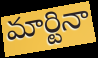
మార్టినా